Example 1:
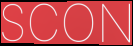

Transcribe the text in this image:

SCON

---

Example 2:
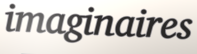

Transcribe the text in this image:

imaginaires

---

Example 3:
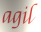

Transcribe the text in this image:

agil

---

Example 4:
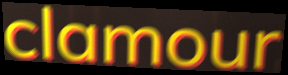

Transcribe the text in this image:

clamour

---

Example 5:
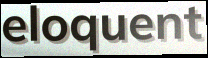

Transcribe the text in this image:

eloquent